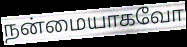
நன்மையாகவோ